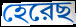
হেরেছ